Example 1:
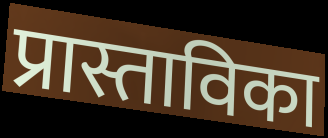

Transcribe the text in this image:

प्रास्ताविका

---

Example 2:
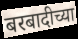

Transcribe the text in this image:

बरबादीच्या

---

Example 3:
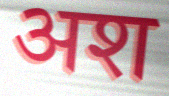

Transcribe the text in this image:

अश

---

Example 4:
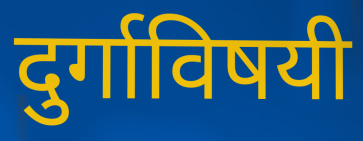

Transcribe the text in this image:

दुर्गाविषयी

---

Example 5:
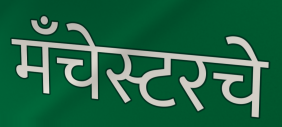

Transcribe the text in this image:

मँचेस्टरचे